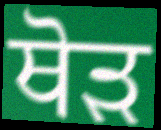
ਥੋੜ